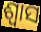
ଶ୍ୱାସ